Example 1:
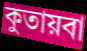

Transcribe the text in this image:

কুতায়বা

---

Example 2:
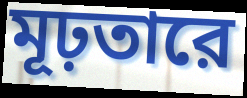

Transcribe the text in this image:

মূঢ়তারে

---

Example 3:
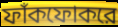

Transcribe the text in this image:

ফাঁকফোকরে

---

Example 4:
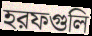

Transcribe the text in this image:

হরফগুলি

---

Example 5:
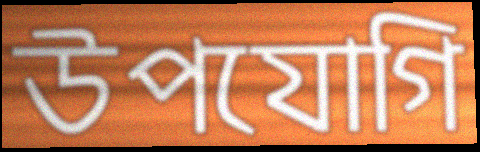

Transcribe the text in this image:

উপযোগি